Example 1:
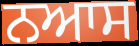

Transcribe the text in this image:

ਨਆਸ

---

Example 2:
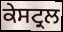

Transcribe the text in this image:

ਕੇਸਟ੍ਰਲ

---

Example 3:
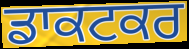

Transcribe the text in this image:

ਡਾਕਟਕਰ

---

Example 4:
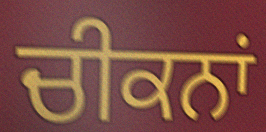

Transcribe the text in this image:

ਚੀਕਨਾਂ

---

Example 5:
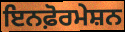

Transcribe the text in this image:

ਇਨਫ਼ੋਰਮੇਸ਼ਨ